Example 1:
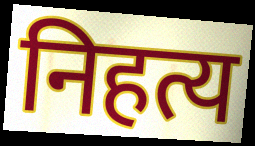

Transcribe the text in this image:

निहत्य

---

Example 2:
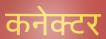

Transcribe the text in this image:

कनेक्टर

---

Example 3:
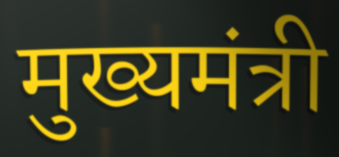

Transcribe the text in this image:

मुख्यमंत्री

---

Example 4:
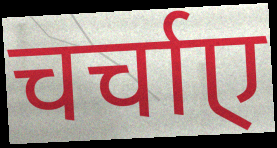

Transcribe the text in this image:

चर्चाए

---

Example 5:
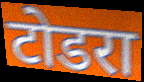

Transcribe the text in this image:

टोडरा